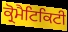
ਕ੍ਰੋਮੈਟਿਕਿਟੀ